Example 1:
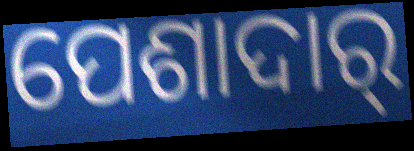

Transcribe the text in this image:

ପେଶାଦାର୍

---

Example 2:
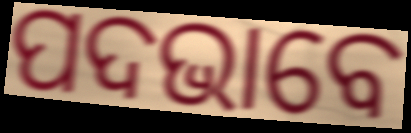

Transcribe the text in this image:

ପଦଭାବେ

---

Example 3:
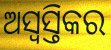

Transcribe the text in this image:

ଅସ୍ୱସ୍ତିକର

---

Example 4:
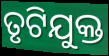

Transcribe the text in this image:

ତୃଟିଯୁକ୍ତ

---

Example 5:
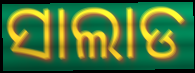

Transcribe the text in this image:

ସାଲାଡ